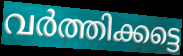
വർത്തിക്കട്ടെ